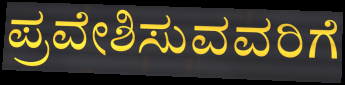
ಪ್ರವೇಶಿಸುವವರಿಗೆ